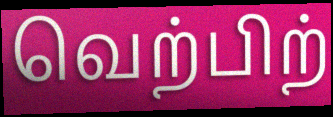
வெற்பிற்